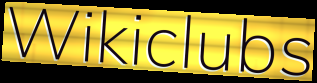
Wikiclubs